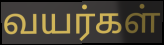
வயர்கள்